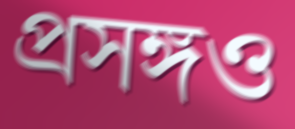
প্রসঙ্গও